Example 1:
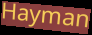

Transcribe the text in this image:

Hayman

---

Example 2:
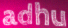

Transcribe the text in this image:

adhu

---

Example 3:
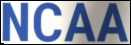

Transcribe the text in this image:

NCAA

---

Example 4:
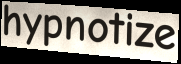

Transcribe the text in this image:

hypnotize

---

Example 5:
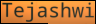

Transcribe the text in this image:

Tejashwi